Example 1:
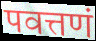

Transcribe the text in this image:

पवत्तणं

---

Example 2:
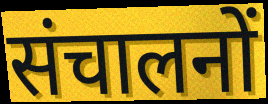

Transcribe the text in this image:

संचालनों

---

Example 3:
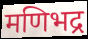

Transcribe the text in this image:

मणिभद्र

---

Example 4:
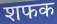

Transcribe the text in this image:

शफक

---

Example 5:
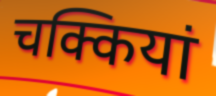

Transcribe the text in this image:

चक्कियां